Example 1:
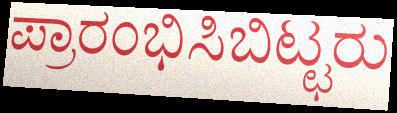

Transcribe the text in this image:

ಪ್ರಾರಂಭಿಸಿಬಿಟ್ಟರು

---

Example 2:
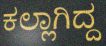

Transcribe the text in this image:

ಕಲ್ಲಾಗಿದ್ದ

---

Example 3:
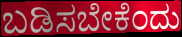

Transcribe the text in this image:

ಬಡಿಸಬೇಕೆಂದು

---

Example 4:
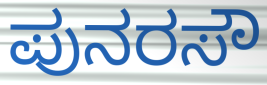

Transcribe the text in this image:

ಪುನರಸೌ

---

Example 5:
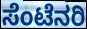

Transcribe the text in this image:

ಸೆಂಟೆನರಿ